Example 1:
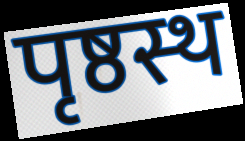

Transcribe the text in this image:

पृष्ठस्थ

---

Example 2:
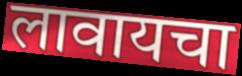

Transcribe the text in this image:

लावायचा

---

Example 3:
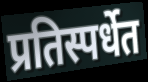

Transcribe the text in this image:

प्रतिस्पर्धेत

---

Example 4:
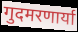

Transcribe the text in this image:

गुदमरणार्या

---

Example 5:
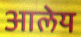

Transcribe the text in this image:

आलेय